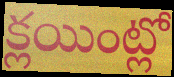
క్లయింట్లో